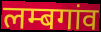
लम्बगांव